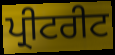
ਪ੍ਰੀਟਰੀਟ